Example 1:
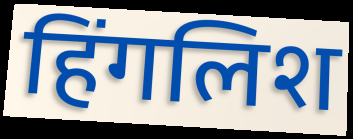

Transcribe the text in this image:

हिंगलिश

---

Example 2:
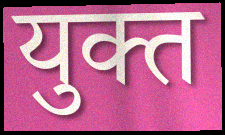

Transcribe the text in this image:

युक्त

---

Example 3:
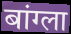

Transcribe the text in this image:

बांग्ला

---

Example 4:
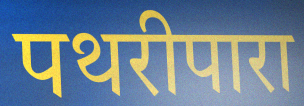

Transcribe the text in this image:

पथरीपारा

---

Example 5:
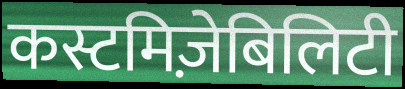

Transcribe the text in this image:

कस्टमिज़ेबिलिटी